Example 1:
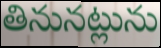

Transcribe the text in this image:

తినునట్లును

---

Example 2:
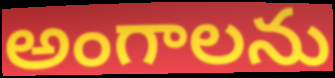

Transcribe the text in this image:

అంగాలను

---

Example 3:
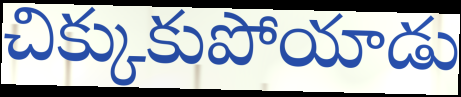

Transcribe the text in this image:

చిక్కుకుపోయాడు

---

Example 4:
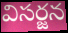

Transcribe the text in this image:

విసర్జన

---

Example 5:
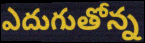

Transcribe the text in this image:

ఎదుగుతోన్న